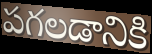
పగలడానికి